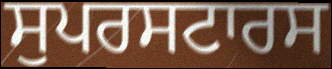
ਸੁਪਰਸਟਾਰਸ